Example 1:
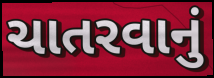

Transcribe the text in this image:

ચાતરવાનું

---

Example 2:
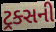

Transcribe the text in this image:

ટ્રક્સની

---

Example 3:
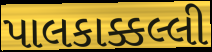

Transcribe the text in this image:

પાલકાક્કલ્લી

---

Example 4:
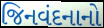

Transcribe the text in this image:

જિનવંદનાનો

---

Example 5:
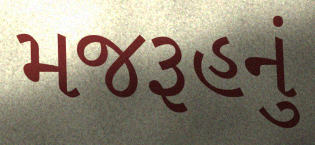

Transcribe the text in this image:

મજરૂહનું